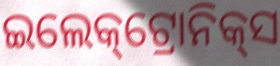
ଇଲେକ୍‌ଟ୍ରୋନିକ୍‌ସ